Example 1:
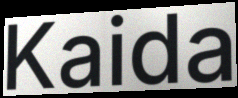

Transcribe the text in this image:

Kaida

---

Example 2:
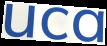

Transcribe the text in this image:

uca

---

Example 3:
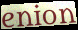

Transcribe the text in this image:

enion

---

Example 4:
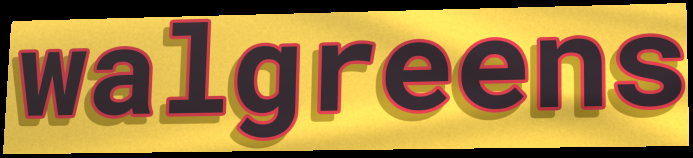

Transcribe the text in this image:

walgreens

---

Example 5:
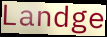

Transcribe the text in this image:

Landge